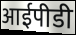
आईपीडी